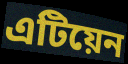
এটিয়েন